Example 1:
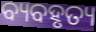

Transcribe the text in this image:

ବ୍ୟବହୃତ୍ୟ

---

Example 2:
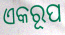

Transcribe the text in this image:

ଏକରୂପ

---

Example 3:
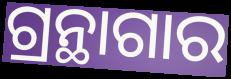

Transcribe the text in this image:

ଗ୍ରନ୍ଥାଗାର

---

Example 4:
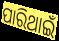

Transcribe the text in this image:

ପାରିଥାଇଁ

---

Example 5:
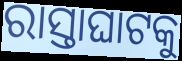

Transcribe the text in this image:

ରାସ୍ତାଘାଟକୁ